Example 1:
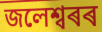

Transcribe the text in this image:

জলেশ্বৰৰ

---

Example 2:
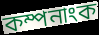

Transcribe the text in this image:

কম্পনাংক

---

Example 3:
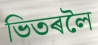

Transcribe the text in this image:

ভিতৰলৈ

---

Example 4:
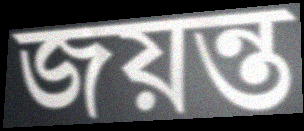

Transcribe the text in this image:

জয়ন্ত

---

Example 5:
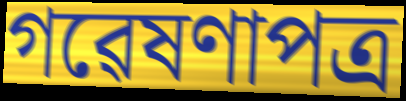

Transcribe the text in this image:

গৱেষণাপত্ৰ